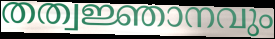
തത്വജ്ഞാനവും